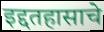
इद्दतहासाचे